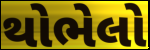
થોભેલો